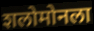
शलोमोनला